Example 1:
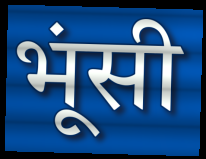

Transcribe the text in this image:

भूंसी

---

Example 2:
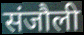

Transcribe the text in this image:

संजौली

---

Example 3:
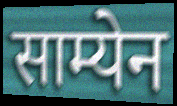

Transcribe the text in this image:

साम्येन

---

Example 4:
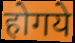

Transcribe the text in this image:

होगये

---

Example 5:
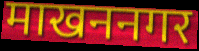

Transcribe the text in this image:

माखननगर